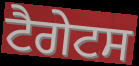
ਟੈਗੇਟਸ